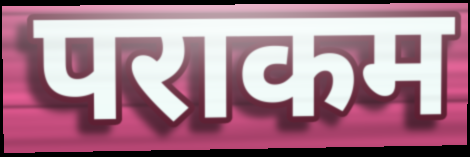
पराकम